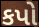
કપો